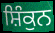
ਸ਼ਿੰਕੁਨ